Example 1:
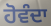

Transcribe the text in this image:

ਹੋਵੰਦਾ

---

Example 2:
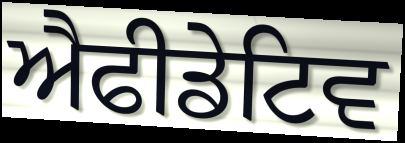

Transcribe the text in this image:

ਐਫੀਡੇਟਿਵ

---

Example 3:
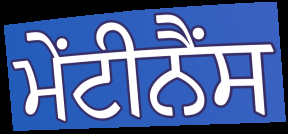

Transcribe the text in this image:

ਮੇਂਟੀਨੈਂਸ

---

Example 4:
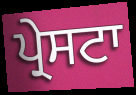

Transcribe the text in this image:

ਪ੍ਰੇਸਟਾ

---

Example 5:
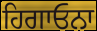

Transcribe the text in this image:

ਹਿਗਾਓਨਾ